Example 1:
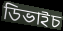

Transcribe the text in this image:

ডিভাইচ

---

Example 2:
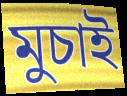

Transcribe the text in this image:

মুচাই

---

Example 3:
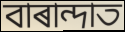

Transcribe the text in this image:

বাৰান্দাত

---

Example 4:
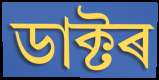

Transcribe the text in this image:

ডাক্টৰ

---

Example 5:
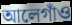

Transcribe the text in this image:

আলেগাঁও